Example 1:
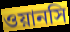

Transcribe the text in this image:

ওয়ানসি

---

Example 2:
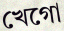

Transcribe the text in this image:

খেগো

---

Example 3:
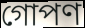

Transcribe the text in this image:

গোপণ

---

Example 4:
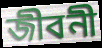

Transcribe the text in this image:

জীবনী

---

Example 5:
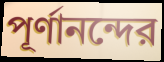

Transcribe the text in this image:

পূর্ণানন্দের